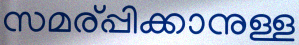
സമര്പ്പിക്കാനുള്ള